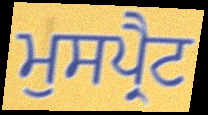
ਮੁਸਪ੍ਰੈਟ